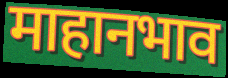
माहानभाव